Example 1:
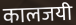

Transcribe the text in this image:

कालजयी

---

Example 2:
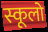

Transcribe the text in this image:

स्कूलो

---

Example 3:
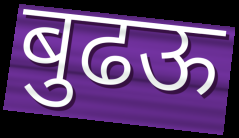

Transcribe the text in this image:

बुढऊ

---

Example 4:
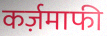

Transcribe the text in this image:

कर्ज़माफी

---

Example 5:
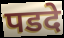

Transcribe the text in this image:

पडदे